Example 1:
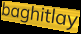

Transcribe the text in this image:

baghitlay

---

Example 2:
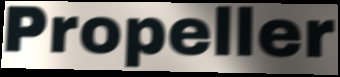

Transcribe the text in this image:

Propeller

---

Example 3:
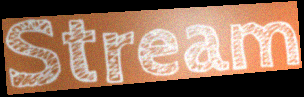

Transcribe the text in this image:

Stream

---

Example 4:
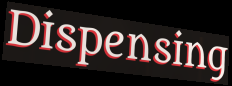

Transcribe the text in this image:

Dispensing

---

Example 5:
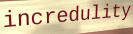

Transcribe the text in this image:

incredulity